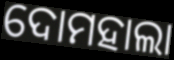
ଦୋମହାଲା